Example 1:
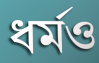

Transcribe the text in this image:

ধর্মও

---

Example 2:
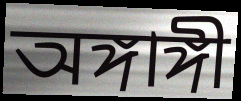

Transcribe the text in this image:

অঙ্গাঙ্গী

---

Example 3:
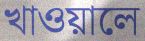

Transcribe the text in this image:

খাওয়ালে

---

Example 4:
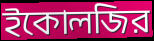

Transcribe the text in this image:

ইকোলজির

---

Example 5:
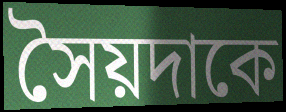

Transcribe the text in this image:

সৈয়দাকে